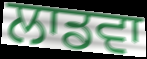
ਲਾਡਵਾ